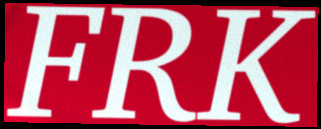
FRK